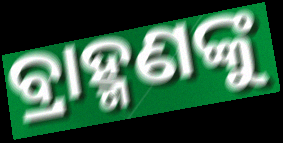
ବ୍ରାହ୍ମଣଙ୍କୁ